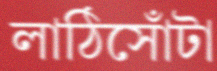
লাঠিসোঁটা